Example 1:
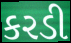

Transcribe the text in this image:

કરડી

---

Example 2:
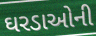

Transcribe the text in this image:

ઘરડાઓની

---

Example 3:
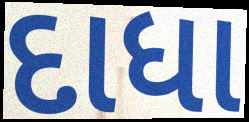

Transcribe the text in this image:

દાધા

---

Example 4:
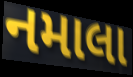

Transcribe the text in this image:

નમાલા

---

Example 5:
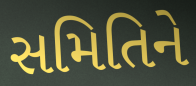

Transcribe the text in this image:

સમિતિને